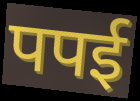
पपई